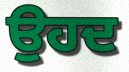
ਉਹਦ